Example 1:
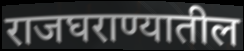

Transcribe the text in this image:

राजघराण्यातील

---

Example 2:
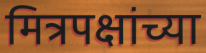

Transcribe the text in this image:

मित्रपक्षांच्या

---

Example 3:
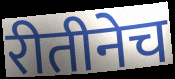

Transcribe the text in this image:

रीतीनेच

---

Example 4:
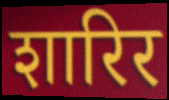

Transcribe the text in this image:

शारिर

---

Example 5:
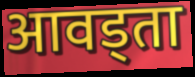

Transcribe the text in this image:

आवड्ता